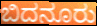
ಬಿದನೂರು